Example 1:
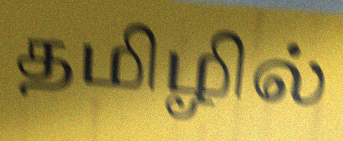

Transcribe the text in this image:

தமிழில்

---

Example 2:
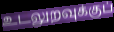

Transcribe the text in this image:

உடலுறவுக்குப்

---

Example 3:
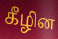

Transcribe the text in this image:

கீழின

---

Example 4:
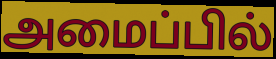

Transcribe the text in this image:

அமைப்பில்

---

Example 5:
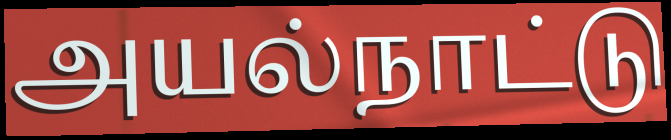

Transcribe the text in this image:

அயல்நாட்டு